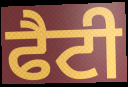
ਫੈਟੀ